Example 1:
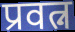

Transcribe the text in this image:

प्रवत्न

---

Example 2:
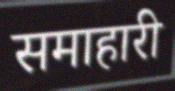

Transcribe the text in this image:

समाहारी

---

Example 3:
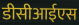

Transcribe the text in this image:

डीसीआईएस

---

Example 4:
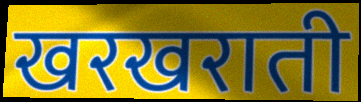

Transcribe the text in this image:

खरखराती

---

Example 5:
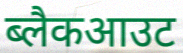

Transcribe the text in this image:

ब्लैकआउट